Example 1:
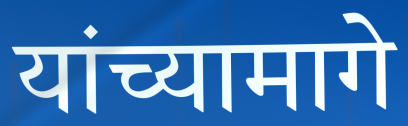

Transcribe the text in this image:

यांच्यामागे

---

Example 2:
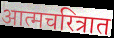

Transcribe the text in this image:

आत्मचरित्रात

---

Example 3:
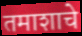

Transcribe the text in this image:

तमाशाचे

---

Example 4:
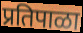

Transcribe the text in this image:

प्रतिपाळा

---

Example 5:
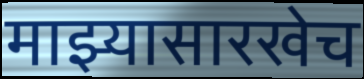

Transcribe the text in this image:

माझ्यासारखेच